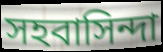
সহবাসিন্দা